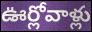
ఊర్లోవాళ్లు